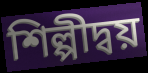
শিল্পীদ্বয়